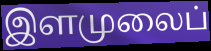
இளமுலைப்